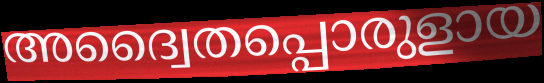
അദ്വൈതപ്പൊരുളായ